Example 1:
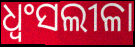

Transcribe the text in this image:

ଧ୍ୱଂସଲୀଳା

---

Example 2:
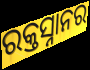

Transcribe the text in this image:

ରକ୍ତସ୍ନାନର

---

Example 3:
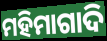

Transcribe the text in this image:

ମହିମାଗାଦି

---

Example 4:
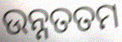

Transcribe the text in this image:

ଉନ୍ନତତମ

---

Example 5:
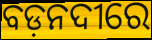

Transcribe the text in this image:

ବଡ଼ନଦୀରେ